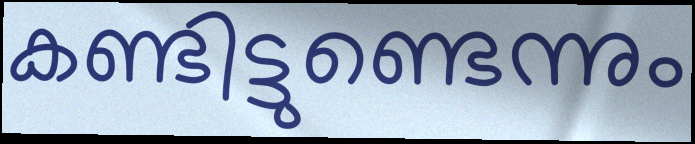
കണ്ടിട്ടുണ്ടെന്നും